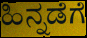
ಹಿನ್ನಡೆಗೆ